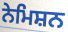
ਨੇਮਿਸ਼ਨ